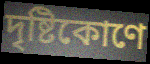
দৃষ্টিকোণে